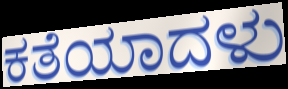
ಕತೆಯಾದಳು